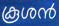
കൂശൻ